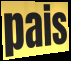
pais